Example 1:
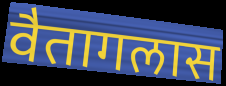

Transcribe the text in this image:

वैतागलास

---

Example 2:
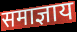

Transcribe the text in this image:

समाज्ञाय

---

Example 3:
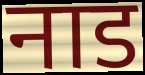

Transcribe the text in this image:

नाड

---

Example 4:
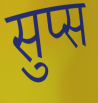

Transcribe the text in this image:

सुप्स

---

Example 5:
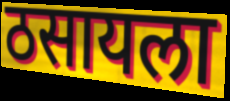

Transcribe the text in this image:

ठसायला